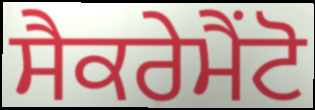
ਸੈਕਰੇਮੈਂਟੋ